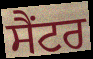
ਸੈਂਟਰ